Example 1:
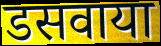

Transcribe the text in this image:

डसवाया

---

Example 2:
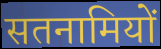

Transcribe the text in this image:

सतनामियों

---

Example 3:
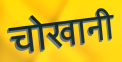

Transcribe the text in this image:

चोखानी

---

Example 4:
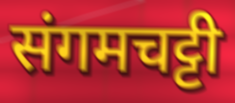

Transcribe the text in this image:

संगमचट्टी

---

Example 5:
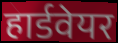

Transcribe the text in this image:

हार्डवेयर